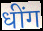
धींग